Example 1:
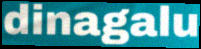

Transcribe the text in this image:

dinagalu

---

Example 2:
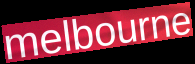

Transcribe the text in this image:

melbourne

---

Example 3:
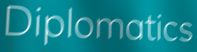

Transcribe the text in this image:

Diplomatics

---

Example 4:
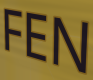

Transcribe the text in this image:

FEN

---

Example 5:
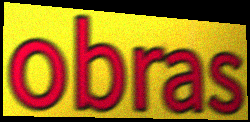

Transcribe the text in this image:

obras